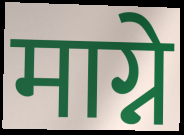
माग्ने